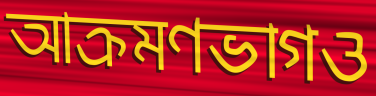
আক্রমণভাগও